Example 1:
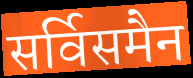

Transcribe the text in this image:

सर्विसमैन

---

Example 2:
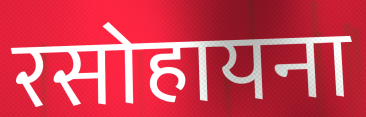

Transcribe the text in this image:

रसोहायना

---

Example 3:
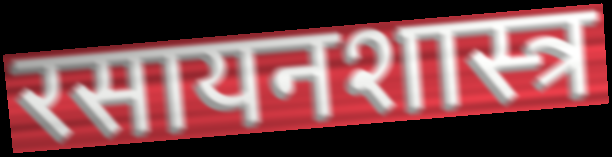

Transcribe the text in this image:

रसायनशास्त्र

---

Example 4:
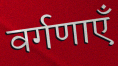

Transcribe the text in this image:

वर्गणाएँ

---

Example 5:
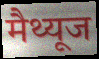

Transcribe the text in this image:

मैथ्‍यूज